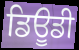
ਡਿਊਡੀ